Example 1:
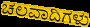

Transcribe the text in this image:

ಚಲವಾದಿಗಳು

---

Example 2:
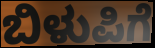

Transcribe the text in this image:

ಬಿಳುಪಿಗೆ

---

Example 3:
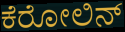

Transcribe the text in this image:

ಕೆರೋಲಿನ್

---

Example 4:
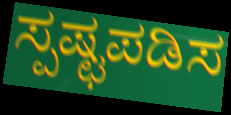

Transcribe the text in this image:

ಸ್ಪಷ್ಟಪಡಿಸ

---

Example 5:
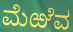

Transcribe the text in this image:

ಮೆಱೆವ